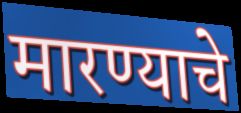
मारण्याचे